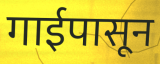
गाईपासून